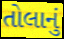
તોલાનું